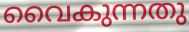
വൈകുന്നതു